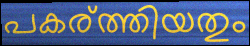
പകര്ത്തിയതും